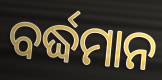
ବର୍ଦ୍ଧମାନ